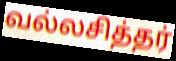
வல்லசித்தர்